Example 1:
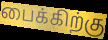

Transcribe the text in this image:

பைக்கிற்கு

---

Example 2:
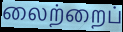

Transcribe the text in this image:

லைற்றைப்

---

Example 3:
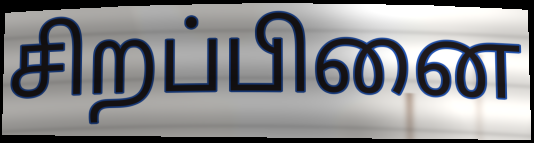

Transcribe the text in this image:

சிறப்பினை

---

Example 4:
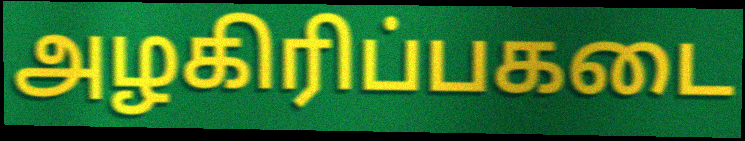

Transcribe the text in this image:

அழகிரிப்பகடை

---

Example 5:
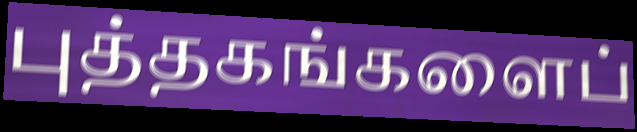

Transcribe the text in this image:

புத்தகங்களைப்